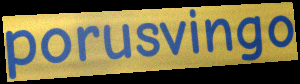
porusvingo